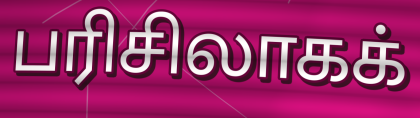
பரிசிலாகக்